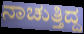
ನಾಚುತ್ತಿದ್ದ